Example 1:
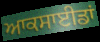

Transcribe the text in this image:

ਆਕਸਾਈਡਾਂ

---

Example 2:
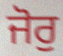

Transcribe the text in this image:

ਜੋਰੁ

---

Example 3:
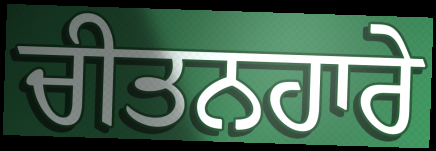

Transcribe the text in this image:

ਚੀਤਨਹਾਰੇ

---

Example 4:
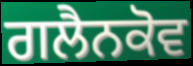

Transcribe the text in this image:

ਗਲੈਨਕੋਵ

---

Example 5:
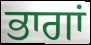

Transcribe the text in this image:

ਭਾਗਾਂ